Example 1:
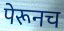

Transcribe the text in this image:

पेरूनच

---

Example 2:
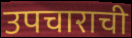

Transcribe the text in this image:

उपचाराची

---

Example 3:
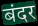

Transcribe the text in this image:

बंदर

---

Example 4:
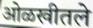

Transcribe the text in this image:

ओळखीतले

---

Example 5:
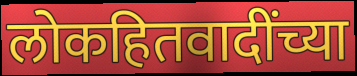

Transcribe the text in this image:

लोकहितवादींच्या